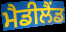
ਮੈਡੀਲੈਂਡ